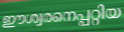
ഈശ്വരനെപ്പറ്റിയ